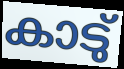
കാടു്